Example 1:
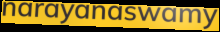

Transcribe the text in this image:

narayanaswamy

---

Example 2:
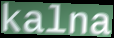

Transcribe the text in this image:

kalna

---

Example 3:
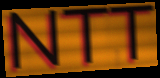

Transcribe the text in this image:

NTT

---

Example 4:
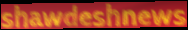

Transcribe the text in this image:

shawdeshnews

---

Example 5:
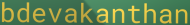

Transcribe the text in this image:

bdevakanthan